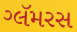
ગ્લૅમરસ